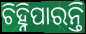
ଚିହ୍ନିପାରନ୍ତି